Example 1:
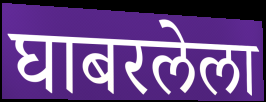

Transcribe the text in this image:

घाबरलेला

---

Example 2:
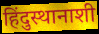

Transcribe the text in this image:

हिंदुस्थानाशी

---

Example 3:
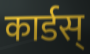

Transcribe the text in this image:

कार्डस्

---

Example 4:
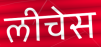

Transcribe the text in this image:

लीचेस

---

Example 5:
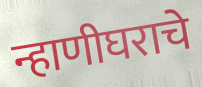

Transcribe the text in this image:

न्हाणीघराचे